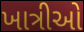
ખાત્રીઓ